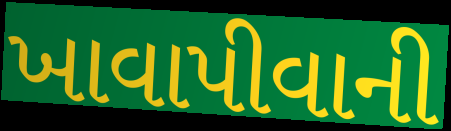
ખાવાપીવાની